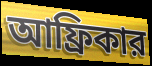
আফ্রিকার